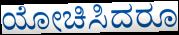
ಯೋಚಿಸಿದರೂ